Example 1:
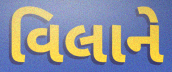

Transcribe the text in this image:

વિલાને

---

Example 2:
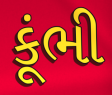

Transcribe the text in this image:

કૂંભી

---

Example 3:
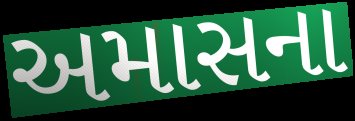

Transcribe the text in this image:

અમાસના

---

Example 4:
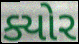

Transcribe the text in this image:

ક્યોર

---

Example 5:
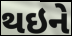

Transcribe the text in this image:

થઇને